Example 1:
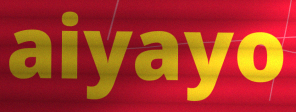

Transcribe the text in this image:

aiyayo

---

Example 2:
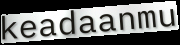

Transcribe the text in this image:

keadaanmu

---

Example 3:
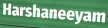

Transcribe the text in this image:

Harshaneeyam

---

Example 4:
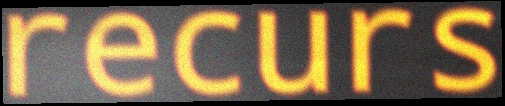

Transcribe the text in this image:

recurs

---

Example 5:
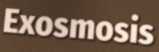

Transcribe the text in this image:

Exosmosis